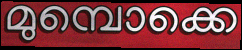
മുമ്പൊക്കെ